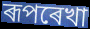
ৰূপৰেখা